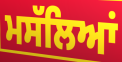
ਮਸੱਲਿਆਂ